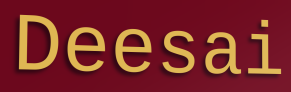
Deesai